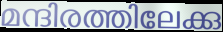
മന്ദിരത്തിലേക്കു